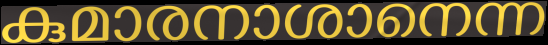
കുമാരനാശാനെന്ന